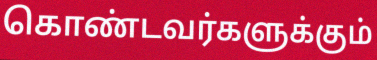
கொண்டவர்களுக்கும்